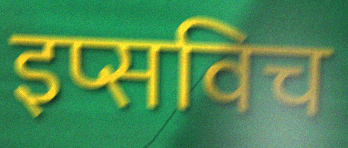
इप्सविच